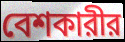
বেশকারীর